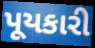
પૂયકારી